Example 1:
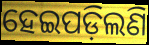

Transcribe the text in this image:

ହେଇପଡ଼ିଲଣି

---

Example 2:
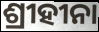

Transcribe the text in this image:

ଶ୍ରୀହୀନା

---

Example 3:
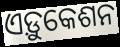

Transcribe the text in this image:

ଏଡ଼ୁକେଶନ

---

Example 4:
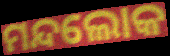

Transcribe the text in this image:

ମନ୍ଦଲୋକ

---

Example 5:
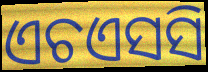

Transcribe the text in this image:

ଏଚଏସସି